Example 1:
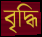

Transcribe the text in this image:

বৃদ্ধি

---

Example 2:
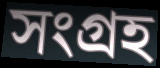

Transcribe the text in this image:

সংগ্রহ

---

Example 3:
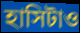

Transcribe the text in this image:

হাসিটাও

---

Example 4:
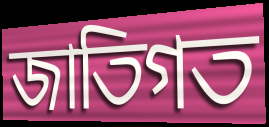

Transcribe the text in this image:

জাতিগত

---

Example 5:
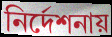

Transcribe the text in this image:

নির্দেশনায়